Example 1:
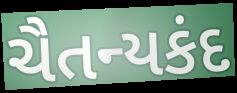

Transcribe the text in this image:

ચૈતન્યકંદ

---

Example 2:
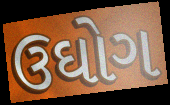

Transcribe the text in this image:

ઉઘોગ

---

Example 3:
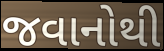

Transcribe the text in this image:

જવાનોથી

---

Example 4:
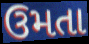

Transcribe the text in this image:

ઉમતા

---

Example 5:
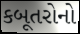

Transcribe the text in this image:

કબૂતરોનો